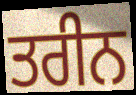
ਤਰੀਨ